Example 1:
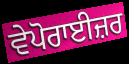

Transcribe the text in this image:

ਵੇਪੋਰਾਈਜ਼ਰ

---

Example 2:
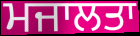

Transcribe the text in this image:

ਮਜਾਲਤਾ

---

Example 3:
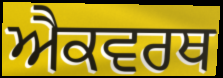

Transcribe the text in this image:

ਐਕਵਰਥ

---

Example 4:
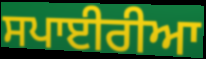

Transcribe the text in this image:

ਸਪਾਈਰੀਆ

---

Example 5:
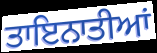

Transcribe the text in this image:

ਤਾਇਨਾਤੀਆਂ